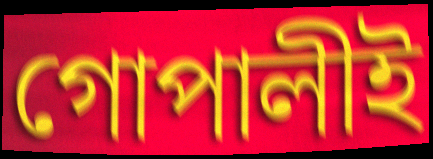
গোপালীই